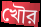
খৌর